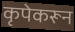
कृपेकरून